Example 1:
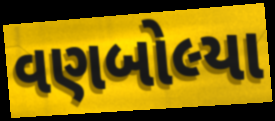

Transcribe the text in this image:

વણબોલ્યા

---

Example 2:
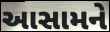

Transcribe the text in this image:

આસામને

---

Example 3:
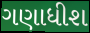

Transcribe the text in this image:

ગણાધીશ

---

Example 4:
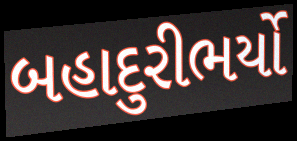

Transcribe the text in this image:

બહાદુરીભર્યો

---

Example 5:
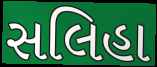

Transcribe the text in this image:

સલિહા